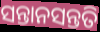
ସନ୍ତାନସନ୍ତତି